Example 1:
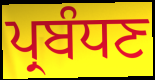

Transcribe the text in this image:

ਪ੍ਰਬੰਧਣ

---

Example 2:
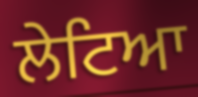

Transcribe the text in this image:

ਲੇਟਿਆ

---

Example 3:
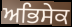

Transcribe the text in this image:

ਅਭਿਸੇਕ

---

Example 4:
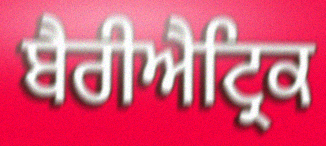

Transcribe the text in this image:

ਬੈਰੀਐਟ੍ਰਿਕ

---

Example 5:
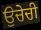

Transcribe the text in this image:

ਉਚੇਚੀ